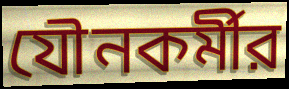
যৌনকর্মীর